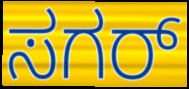
ಸಗರ್